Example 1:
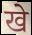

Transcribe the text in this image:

खे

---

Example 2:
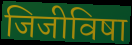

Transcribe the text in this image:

जिजीविषा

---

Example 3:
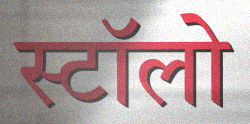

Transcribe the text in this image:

स्टॉलो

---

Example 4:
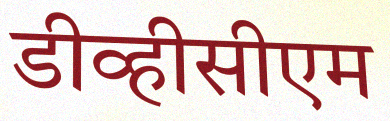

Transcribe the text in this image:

डीव्हीसीएम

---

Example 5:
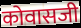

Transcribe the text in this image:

कोवासजी